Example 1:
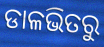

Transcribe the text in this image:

ଡାଳଭିତରୁ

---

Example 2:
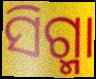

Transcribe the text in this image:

ସିଗ୍ମା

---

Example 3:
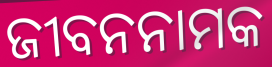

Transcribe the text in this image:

ଜୀବନନାମକ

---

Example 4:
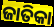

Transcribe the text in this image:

ଜାତିକା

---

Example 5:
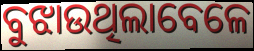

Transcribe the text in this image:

ବୁଝାଉଥିଲାବେଳେ